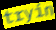
tryin